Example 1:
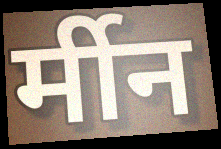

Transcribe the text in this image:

र्मीन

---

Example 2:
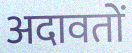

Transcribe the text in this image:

अदावतों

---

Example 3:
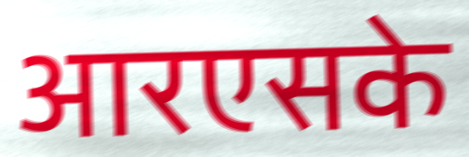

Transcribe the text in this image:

आरएसके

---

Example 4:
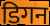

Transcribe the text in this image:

डिगन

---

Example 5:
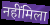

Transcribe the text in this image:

नहींमिला